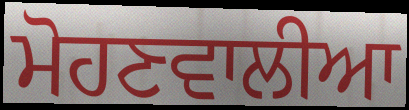
ਮੋਹਣਵਾਲੀਆ